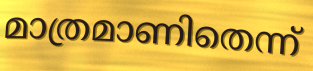
മാത്രമാണിതെന്ന്